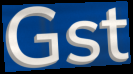
Gst